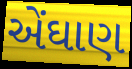
એંઘાણ